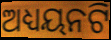
ଅଧ୍ୟୟନଟି